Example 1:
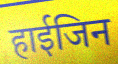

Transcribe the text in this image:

हाईजिन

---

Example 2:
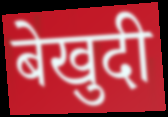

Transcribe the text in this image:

बेखुदी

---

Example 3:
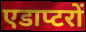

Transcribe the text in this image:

एडाप्टरों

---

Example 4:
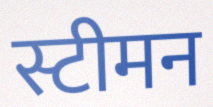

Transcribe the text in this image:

स्टीमन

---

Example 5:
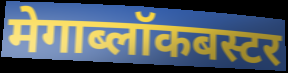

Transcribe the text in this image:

मेगाब्लॉकबस्टर